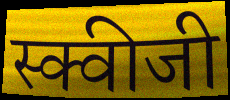
स्क्वीजी